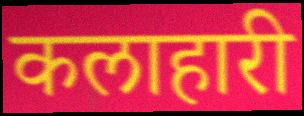
कलाहारी